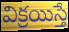
విక్రయిస్తే